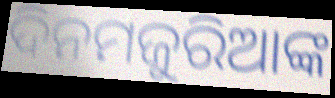
ଦିନମଜୁରିଆଙ୍କ